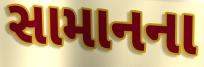
સામાનના